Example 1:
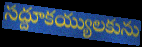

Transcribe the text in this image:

సద్దూకయ్యులకును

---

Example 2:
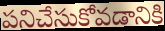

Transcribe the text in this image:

పనిచేసుకోవడానికి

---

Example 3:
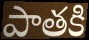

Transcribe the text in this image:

పాతకి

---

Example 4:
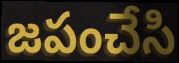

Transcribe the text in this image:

జపంచేసి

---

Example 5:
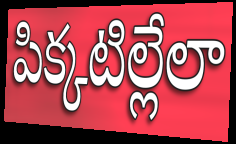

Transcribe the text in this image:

పిక్కటిల్లేలా